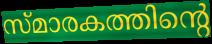
സ്മാരകത്തിന്റെ